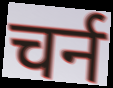
चर्न